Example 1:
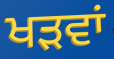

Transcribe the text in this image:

ਖੜਵਾਂ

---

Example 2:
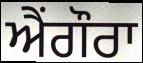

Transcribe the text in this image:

ਐਂਗੌਰਾ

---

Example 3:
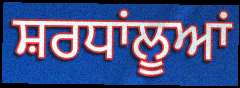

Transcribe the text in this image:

ਸ਼ਰਧਾਂਲੂਆਂ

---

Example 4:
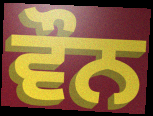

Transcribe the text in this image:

ਵੌਨ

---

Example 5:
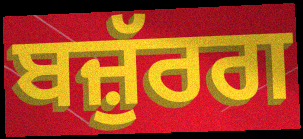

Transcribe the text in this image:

ਬਜ਼ੁੱਰਗ